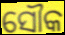
ସୌକ